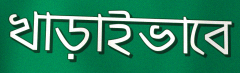
খাড়াইভাবে